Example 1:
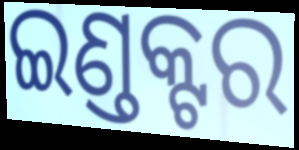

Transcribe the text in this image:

ଇଣ୍ଡକ୍ଟର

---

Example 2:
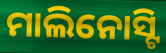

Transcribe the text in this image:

ମାଲିନୋସ୍ଟି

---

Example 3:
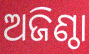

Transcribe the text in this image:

ଅଜିଣ୍ଠା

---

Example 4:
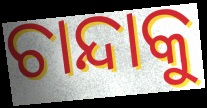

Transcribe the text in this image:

ଚାନ୍ଦାକୁ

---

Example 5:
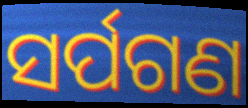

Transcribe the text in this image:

ସର୍ପଗଣ